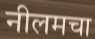
नीलमचा